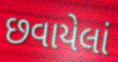
છવાયેલાં